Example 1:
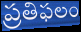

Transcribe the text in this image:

ప్రతిఫలం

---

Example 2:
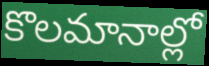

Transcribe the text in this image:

కొలమానాల్లో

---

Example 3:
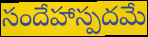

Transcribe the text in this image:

సందేహాస్పదమే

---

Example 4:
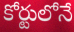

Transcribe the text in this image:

కోర్టులోనే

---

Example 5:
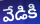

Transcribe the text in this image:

వేడికి